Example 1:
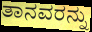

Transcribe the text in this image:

ತಾನವರನ್ನು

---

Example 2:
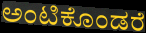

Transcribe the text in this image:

ಅಂಟಿಕೊಂಡರೆ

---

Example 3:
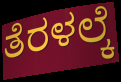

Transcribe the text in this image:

ತೆರಳಲ್ಕೆ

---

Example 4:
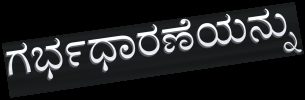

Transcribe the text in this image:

ಗರ್ಭಧಾರಣೆಯನ್ನು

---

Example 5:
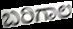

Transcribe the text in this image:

ಬರಿಗಾಲ